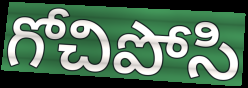
గోచిపోసి